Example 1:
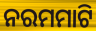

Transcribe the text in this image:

ନରମମାଟି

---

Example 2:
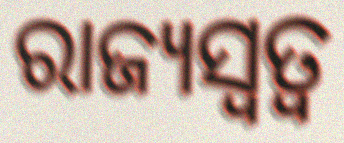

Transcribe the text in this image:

ରାଜ୍ୟସ୍ଵତ୍ଵ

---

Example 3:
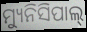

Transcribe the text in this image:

ମ୍ୟୁନିସିପାଲ୍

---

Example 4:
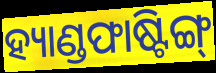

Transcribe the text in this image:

ହ୍ୟାଣ୍ଡଫାଷ୍ଟିଙ୍ଗ୍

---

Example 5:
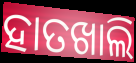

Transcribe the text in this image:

ହାତଖାଲି